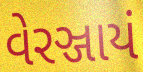
વેરઞ્જાયં